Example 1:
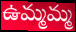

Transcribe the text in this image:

ఉమ్మమ్మ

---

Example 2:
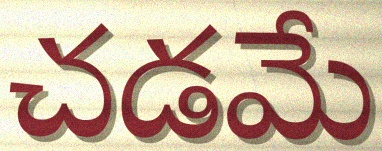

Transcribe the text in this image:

చడమే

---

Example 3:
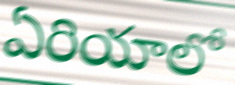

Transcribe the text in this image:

ఏరియాలో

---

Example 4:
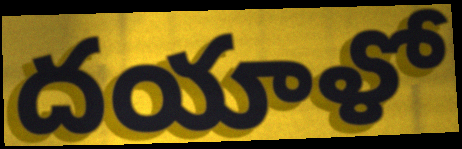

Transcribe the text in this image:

దయాళో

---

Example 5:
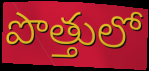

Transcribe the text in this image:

పొత్తులో